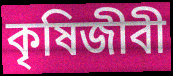
কৃষিজীবী